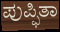
ಪುಪ್ಫಿತಾ